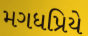
મગધપ્રિયે